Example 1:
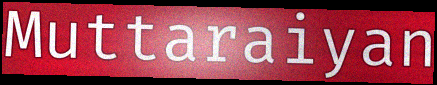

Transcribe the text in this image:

Muttaraiyan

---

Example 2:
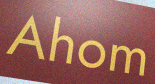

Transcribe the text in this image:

Ahom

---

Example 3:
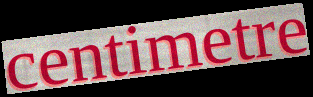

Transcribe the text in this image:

centimetre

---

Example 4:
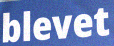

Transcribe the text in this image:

blevet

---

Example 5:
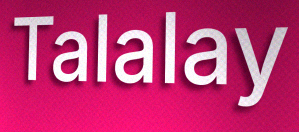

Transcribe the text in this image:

Talalay